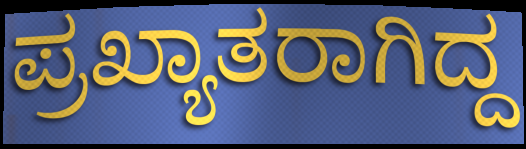
ಪ್ರಖ್ಯಾತರಾಗಿದ್ದ